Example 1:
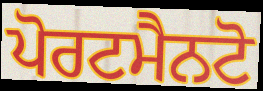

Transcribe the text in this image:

ਪੋਰਟਮੈਨਟੋ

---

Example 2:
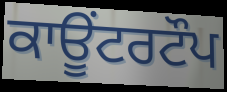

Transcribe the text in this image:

ਕਾਊਂਟਰਟੌਪ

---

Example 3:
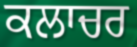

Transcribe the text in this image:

ਕਲਾਚਰ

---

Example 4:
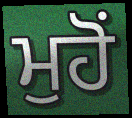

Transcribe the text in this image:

ਮੁਹੋਂ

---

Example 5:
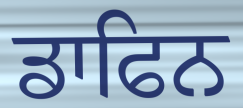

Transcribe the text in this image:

ਡਾਫਿਨ